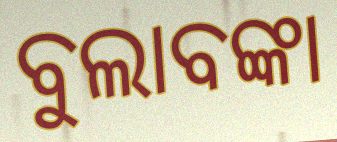
ବୁଲାବଙ୍କା